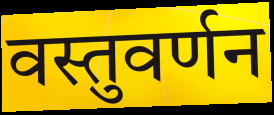
वस्तुवर्णन